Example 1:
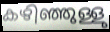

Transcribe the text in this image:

കഴിഞ്ഞുള്ളു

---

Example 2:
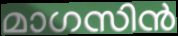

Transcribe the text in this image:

മാഗസിൻ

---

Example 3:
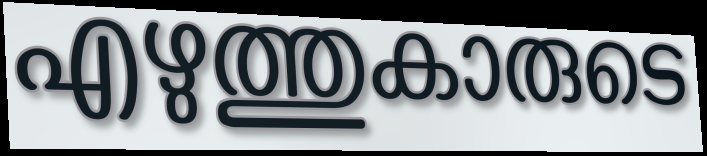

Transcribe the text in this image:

എഴുത്തുകാരുടെ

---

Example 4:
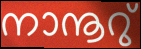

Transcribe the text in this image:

നാനൂറു്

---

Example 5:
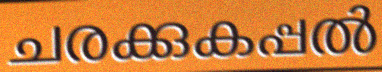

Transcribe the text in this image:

ചരക്കുകപ്പൽ